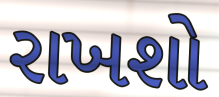
રાખશો